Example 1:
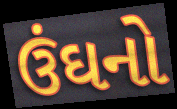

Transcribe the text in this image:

ઉંઘનો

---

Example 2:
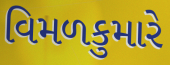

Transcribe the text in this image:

વિમળકુમારે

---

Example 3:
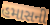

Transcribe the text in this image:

હમાસની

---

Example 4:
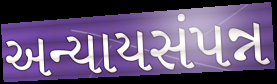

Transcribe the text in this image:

અન્યાયસંપન્ન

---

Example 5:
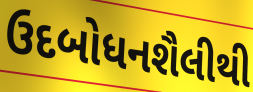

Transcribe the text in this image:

ઉદબોધનશૈલીથી